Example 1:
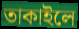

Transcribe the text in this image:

তাকাইলে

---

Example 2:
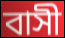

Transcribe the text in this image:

বাসী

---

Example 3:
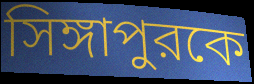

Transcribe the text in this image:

সিঙ্গাপুরকে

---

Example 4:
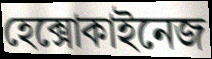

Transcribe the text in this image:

হেক্সোকাইনেজ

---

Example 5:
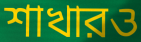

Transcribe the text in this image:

শাখারও